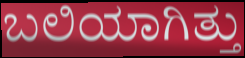
ಬಲಿಯಾಗಿತ್ತು